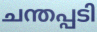
ചന്തപ്പടി